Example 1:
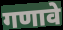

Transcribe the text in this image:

गणावे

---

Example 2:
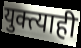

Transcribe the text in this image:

युक्त्याही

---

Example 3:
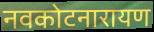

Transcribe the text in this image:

नवकोटनारायण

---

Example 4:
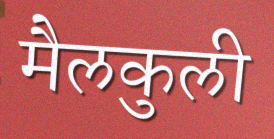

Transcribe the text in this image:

मैलकुली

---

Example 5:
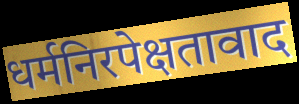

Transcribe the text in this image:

धर्मनिरपेक्षतावाद